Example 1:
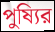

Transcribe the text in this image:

পুষ্যির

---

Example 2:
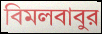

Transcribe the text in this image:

বিমলবাবুর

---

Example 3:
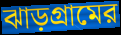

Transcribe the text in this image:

ঝাড়গ্রামের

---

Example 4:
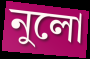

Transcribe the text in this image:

নুলো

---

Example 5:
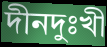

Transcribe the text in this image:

দীনদুঃখী